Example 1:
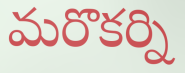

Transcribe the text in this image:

మరొకర్ని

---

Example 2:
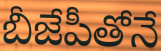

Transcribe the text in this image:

బీజేపీతోనే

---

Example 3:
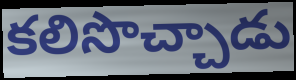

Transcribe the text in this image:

కలిసొచ్చాడు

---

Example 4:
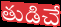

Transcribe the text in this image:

తుడిచే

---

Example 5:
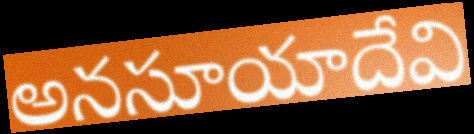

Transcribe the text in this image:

అనసూయాదేవి